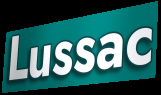
Lussac